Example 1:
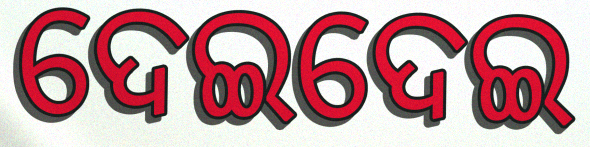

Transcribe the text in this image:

ଦେଇଦେଇ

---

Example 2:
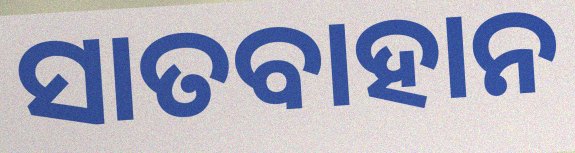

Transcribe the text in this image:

ସାତବାହାନ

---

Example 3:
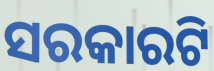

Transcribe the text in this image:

ସରକାରଟି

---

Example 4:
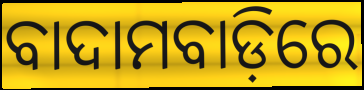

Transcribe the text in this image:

ବାଦାମବାଡ଼ିରେ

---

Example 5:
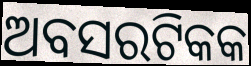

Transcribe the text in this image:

ଅବସରଟିକକ